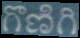
గొణిగి